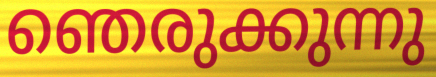
ഞെരുക്കുന്നു